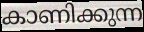
കാണിക്കുന്ന